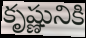
కృష్ణునికి